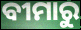
ବୀମାରୁ